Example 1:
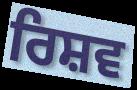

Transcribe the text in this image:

ਰਿਸ਼ਵ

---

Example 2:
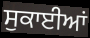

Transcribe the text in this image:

ਸੁਕਾਈਆਂ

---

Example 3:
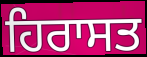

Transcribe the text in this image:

ਹਿਰਾਸਤ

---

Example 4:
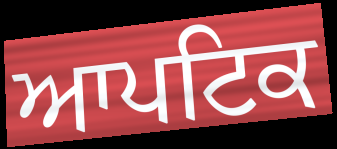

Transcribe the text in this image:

ਆਪਟਿਕ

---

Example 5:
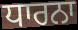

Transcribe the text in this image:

ਧਾਰਨਾ